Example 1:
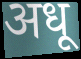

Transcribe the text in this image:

अधू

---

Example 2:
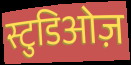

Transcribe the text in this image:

स्टुडिओज़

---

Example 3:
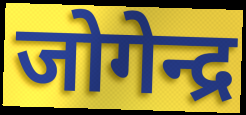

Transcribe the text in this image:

जोगेन्द्र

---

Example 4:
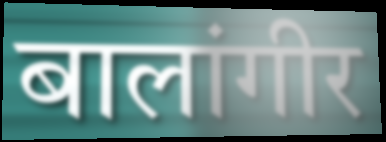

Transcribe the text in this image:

बालांगीर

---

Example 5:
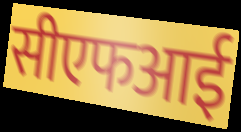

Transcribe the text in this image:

सीएफआई